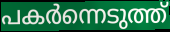
പകർന്നെടുത്ത്